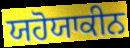
ਯਹੋਯਾਕੀਨ